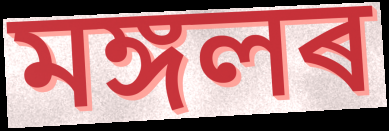
মঙ্গলৰ